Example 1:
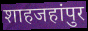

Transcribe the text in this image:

शाहजहांपुर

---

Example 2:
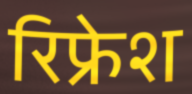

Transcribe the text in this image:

रिफ्रेश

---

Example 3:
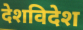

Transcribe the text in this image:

देशविदेश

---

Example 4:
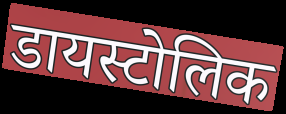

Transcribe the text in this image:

डायस्टोलिक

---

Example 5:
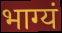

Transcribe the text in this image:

भाग्यं